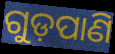
ଗୁଡ଼ପାଣି